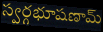
స్వర్గభూషణామ్